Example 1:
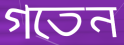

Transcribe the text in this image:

গতেন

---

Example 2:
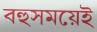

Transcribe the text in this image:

বহুসময়েই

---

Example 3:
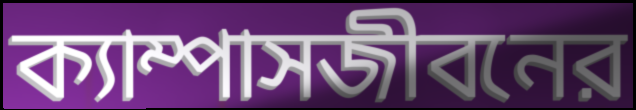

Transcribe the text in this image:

ক্যাম্পাসজীবনের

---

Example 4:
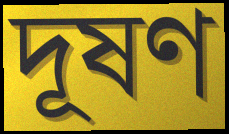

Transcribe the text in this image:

দূষণ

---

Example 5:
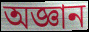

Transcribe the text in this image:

অজ্ঞান